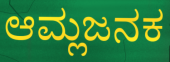
ಆಮ್ಲಜನಕ